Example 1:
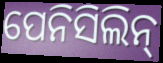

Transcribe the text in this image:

ପେନିସିଲିନ୍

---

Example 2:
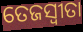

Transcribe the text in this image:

ତେଜସ୍ଵୀତା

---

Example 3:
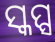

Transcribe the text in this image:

ସ୍କପ୍ସ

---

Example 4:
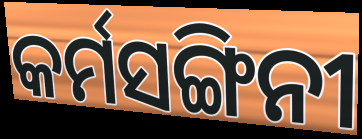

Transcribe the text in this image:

କର୍ମସଙ୍ଗିନୀ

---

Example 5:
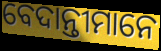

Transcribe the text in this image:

ବେଦାନ୍ତୀମାନେ